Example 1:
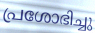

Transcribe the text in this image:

പ്രശോഭിച്ചു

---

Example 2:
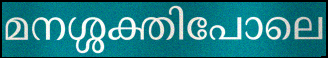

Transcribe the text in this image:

മനശ്ശക്തിപോലെ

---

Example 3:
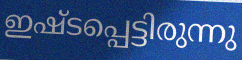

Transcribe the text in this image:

ഇഷ്ടപ്പെട്ടിരുന്നു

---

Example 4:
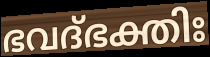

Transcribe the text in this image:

ഭവദ്ഭക്തിഃ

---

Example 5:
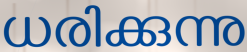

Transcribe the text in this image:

ധരിക്കുന്നു